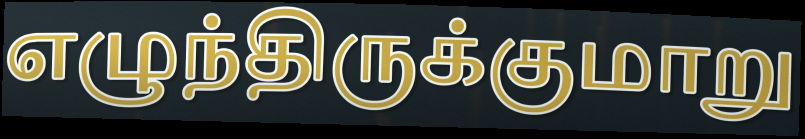
எழுந்திருக்குமாறு